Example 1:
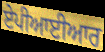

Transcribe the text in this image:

ਏਪੀਆਈਆਰ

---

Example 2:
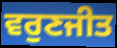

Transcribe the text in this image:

ਵਰੁਣਜੀਤ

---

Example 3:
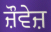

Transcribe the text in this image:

ਜ਼ੌਵੇਜ਼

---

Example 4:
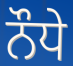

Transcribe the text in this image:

ਨੌਧੇ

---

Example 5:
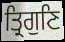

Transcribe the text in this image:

ਤ੍ਰਿਗੁਣਿ